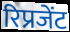
रिप्रजेंट